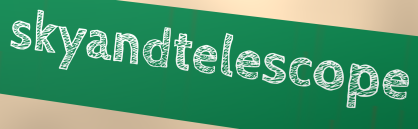
skyandtelescope